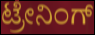
ಟ್ರೇನಿಂಗ್